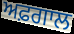
ਅਫ਼ਗਾਲ